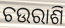
ଚଉରାଶି